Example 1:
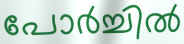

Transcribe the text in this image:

പോർച്ചിൽ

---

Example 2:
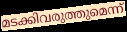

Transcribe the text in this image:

മടക്കിവരുത്തുമെന്ന്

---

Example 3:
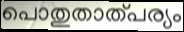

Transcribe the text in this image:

പൊതുതാത്പര്യം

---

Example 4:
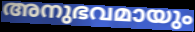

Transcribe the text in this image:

അനുഭവമായും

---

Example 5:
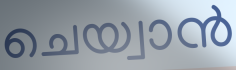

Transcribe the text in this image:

ചെയ്വാൻ